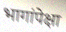
भागांपेक्षा